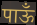
पाऊँ